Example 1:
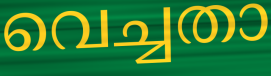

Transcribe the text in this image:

വെച്ചതാ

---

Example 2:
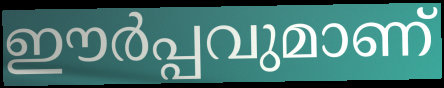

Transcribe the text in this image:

ഈർപ്പവുമാണ്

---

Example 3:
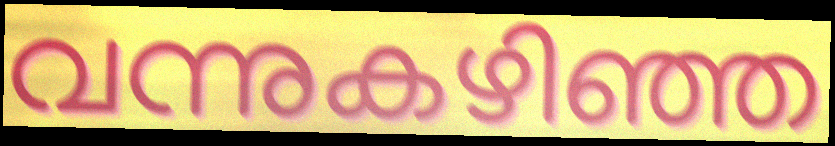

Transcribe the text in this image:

വന്നുകഴിഞ്ഞ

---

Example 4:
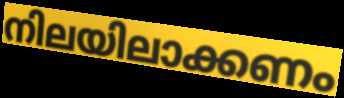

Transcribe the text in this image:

നിലയിലാക്കണം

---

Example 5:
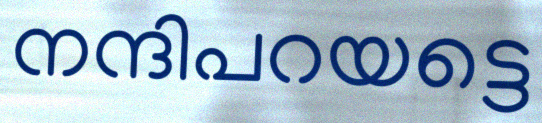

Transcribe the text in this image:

നന്ദിപറയട്ടെ